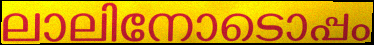
ലാലിനോടൊപ്പം